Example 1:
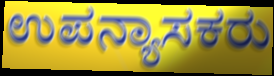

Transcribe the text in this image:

ಉಪನ್ಯಾಸಕರು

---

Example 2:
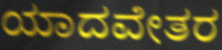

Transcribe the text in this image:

ಯಾದವೇತರ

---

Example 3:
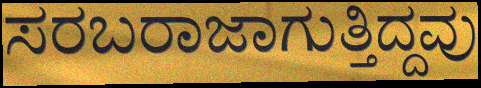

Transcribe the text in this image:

ಸರಬರಾಜಾಗುತ್ತಿದ್ದವು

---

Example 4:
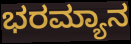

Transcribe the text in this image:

ಭರಮ್ಯಾನ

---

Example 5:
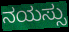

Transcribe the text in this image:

ನಯಸ್ಸು